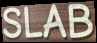
SLAB